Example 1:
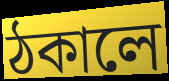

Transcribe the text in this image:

ঠকালে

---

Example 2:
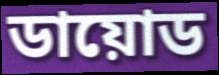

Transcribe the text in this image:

ডায়োড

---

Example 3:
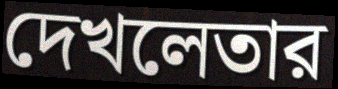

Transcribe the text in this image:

দেখলেতার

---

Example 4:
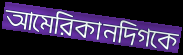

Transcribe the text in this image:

আমেরিকানদিগকে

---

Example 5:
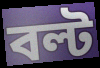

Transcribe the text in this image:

বল্ট